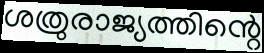
ശത്രുരാജ്യത്തിന്റെ